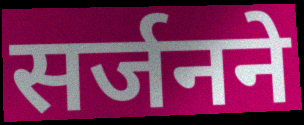
सर्जनने